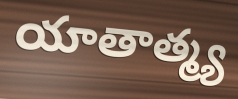
యాతాత్మ్య